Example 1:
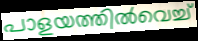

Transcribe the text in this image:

പാളയത്തിൽവെച്ച്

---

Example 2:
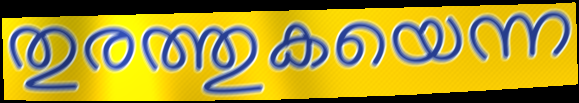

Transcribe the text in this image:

തുരത്തുകയെന്ന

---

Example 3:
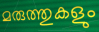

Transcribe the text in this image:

മരുത്തുകളും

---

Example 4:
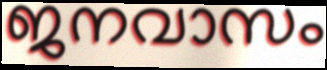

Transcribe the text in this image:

ജനവാസം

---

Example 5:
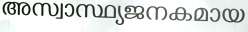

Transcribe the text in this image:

അസ്വാസ്ഥ്യജനകമായ